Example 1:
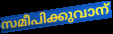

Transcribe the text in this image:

സമീപിക്കുവാന്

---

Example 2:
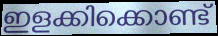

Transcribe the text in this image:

ഇളക്കിക്കൊണ്ട്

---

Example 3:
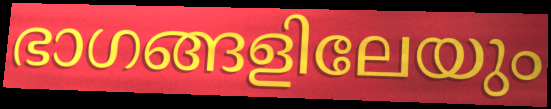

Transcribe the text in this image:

ഭാഗങ്ങളിലേയും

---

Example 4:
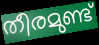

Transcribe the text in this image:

തീരമുണ്ട്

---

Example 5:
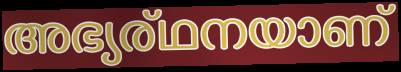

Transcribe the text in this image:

അഭ്യര്ഥനയാണ്